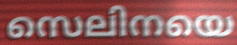
സെലിനയെ